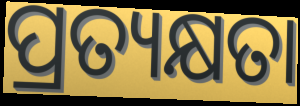
ପ୍ରତ୍ୟକ୍ଷତା